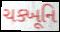
ચક્ખૂનિ